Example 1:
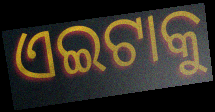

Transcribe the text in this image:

ଏଇଟାକୁ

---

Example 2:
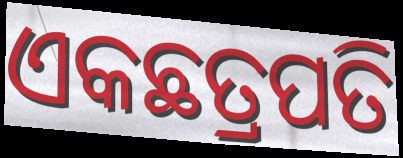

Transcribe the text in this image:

ଏକଛତ୍ରପତି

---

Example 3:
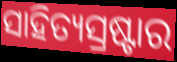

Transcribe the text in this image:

ସାହିତ୍ୟସ୍ରଷ୍ଟାର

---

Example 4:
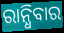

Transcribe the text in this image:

ରାନ୍ଧିବାର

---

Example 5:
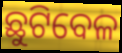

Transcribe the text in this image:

ଛୁଟିବେଳ